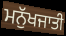
ਮਨੁੱਖਜਾਤੀ